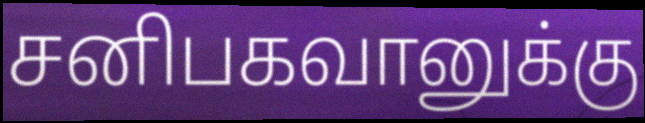
சனிபகவானுக்கு